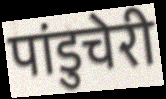
पांडुचेरी